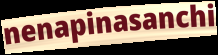
nenapinasanchi